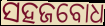
ସହଜବୋଧ